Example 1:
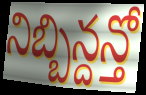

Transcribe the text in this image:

నిబ్బిన్దన్తో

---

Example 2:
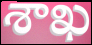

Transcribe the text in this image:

శాఖ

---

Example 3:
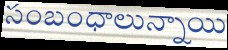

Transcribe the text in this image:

సంబంధాలున్నాయి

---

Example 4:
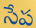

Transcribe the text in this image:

సేప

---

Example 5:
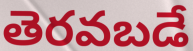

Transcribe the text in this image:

తెరవబడే